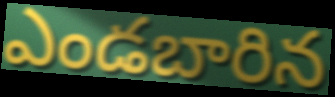
ఎండబారిన